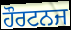
ਹੌਰਟਨਜ